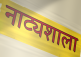
नाट्यशाला